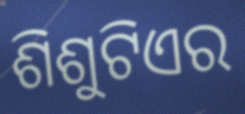
ଶିଶୁଟିଏର